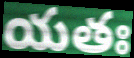
యతః